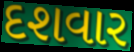
દશવાર